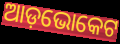
ଆଡ଼ଭୋକେଟ